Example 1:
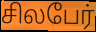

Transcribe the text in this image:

சிலபேர்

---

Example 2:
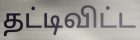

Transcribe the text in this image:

தட்டிவிட்ட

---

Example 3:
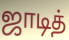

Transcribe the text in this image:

ஜாடித்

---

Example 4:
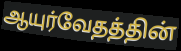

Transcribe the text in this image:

ஆயுர்வேதத்தின்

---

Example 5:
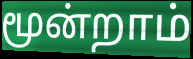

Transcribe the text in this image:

மூன்றாம்